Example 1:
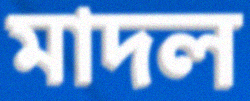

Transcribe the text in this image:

মাদল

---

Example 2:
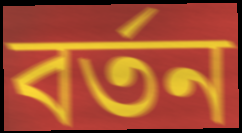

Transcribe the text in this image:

বৰ্তন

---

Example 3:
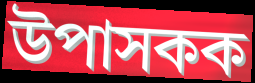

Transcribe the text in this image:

উপাসকক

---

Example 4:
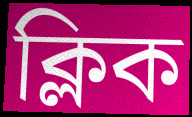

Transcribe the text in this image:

ক্লিক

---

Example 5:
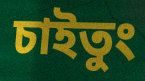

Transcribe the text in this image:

চাইতুং